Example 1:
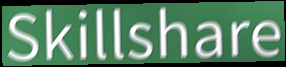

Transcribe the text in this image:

Skillshare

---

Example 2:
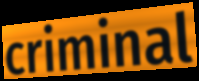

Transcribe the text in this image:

criminal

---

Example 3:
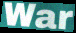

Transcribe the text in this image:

War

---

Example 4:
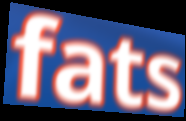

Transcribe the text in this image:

fats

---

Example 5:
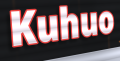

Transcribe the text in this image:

Kuhuo